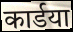
कार्डया